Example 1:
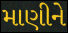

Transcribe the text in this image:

માણીને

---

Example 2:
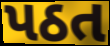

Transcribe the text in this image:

પઠત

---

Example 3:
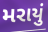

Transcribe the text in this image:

મરાયું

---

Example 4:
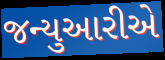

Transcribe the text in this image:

જન્યુઆરીએ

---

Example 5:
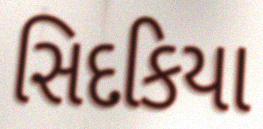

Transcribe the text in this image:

સિદકિયા